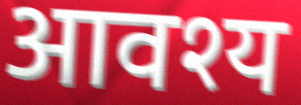
आवश्य